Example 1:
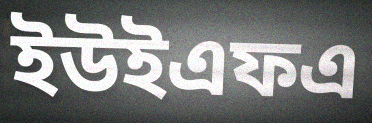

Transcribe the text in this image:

ইউইএফএ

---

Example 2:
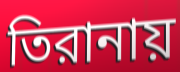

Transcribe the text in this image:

তিরানায়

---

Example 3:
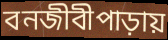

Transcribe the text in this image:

বনজীবীপাড়ায়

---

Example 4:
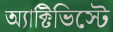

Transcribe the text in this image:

অ্যাক্টিভিস্টে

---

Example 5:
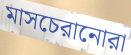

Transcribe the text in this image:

মাসচেরানোরা